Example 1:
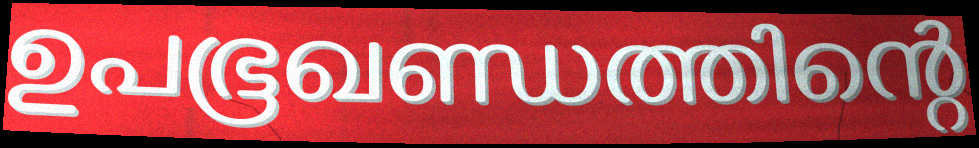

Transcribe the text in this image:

ഉപഭൂഖണ്ഡത്തിന്റെ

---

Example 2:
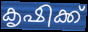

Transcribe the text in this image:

കൃഷിക്ക്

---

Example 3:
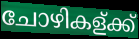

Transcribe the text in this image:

ചോഴികള്ക്ക്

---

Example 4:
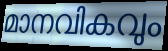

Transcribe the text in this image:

മാനവികവും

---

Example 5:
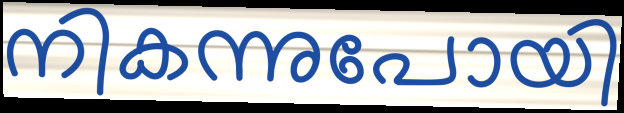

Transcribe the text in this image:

നികന്നുപോയി